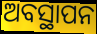
ଅବସ୍ଥାପନ